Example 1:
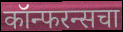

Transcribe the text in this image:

कॉन्फरन्सचा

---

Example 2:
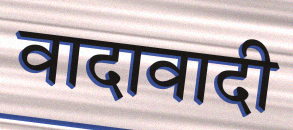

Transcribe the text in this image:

वादावादी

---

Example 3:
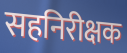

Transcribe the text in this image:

सहनिरीक्षक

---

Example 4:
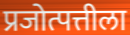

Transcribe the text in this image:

प्रजोत्पत्तीला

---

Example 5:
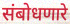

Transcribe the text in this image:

संबोधणारे